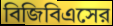
বিজিবিএসের